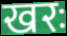
खरः